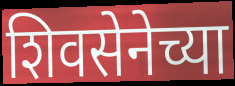
शिवसेनेच्या